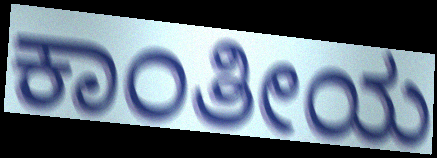
ಕಾಂತೀಯ